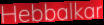
Hebbalkar